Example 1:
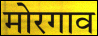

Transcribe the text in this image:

मोरगाव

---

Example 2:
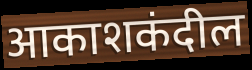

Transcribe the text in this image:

आकाशकंदील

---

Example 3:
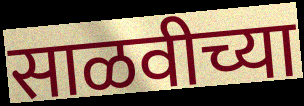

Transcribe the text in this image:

साळवीच्या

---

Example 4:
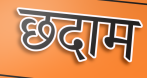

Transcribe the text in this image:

छदाम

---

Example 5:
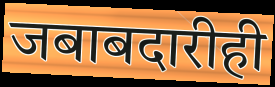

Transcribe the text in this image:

जबाबदारीही